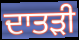
ਦਾਤੜੀ